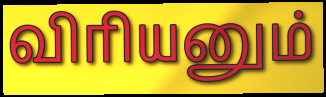
விரியனும்